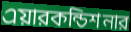
এয়ারকন্ডিশনার